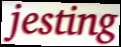
jesting